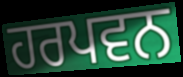
ਹਰਪਵਨ